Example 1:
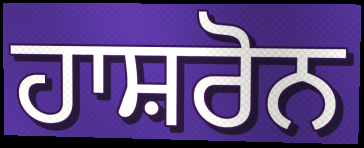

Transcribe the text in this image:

ਹਾਸ਼ਰੋਨ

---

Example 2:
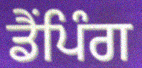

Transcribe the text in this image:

ਡੈਂਪਿੰਗ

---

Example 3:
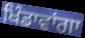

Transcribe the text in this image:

ਖਿੰਡਾਵਾਂਗਾ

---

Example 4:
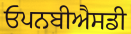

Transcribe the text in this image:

ਓਪਨਬੀਐਸਡੀ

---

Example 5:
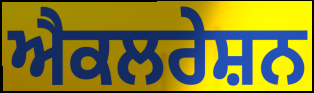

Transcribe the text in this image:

ਐਕਲਰੇਸ਼ਨ